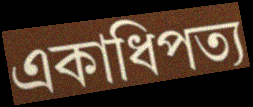
একাধিপত্য